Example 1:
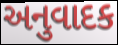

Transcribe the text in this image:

અનુવાદક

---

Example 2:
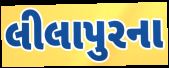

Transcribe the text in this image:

લીલાપુરના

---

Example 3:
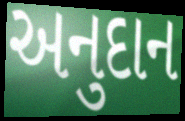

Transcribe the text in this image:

અનુદાન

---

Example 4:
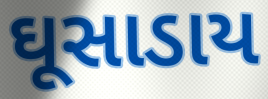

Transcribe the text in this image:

ઘૂસાડાય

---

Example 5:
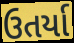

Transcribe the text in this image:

ઉતર્યા